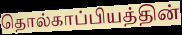
தொல்காப்பியத்தின்